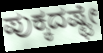
ಪುಕ್ಕದಷ್ಟೇ